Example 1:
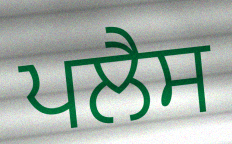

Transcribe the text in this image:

ਪਲੈਸ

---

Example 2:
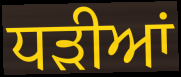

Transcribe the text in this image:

ਧੜੀਆਂ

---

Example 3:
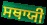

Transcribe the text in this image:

ਸਥਾਯੀ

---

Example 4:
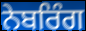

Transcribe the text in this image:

ਨੇਬਰਿੰਗ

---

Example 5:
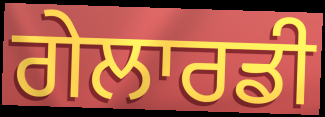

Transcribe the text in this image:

ਗੇਲਾਰਡੀ